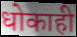
धोकाही